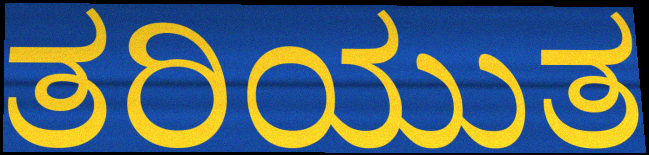
ತರಿಯುತ